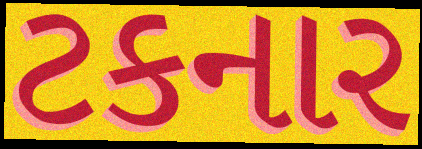
ટકનાર